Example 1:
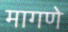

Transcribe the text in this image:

मागणे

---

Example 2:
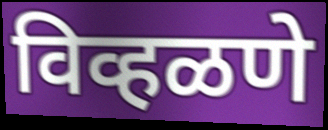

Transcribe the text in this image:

विव्हळणे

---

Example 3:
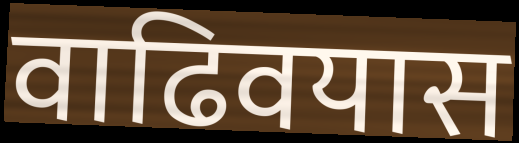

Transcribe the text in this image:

वाढिवयास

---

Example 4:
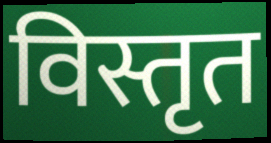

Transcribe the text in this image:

विस्तृत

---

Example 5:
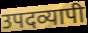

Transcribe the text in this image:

उपदव्यापी